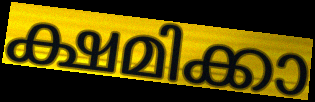
ക്ഷമിക്കാ